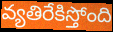
వ్యతిరేకిస్తోంది